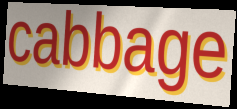
cabbage